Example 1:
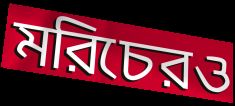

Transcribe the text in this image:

মরিচেরও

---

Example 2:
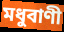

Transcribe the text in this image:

মধুবাণী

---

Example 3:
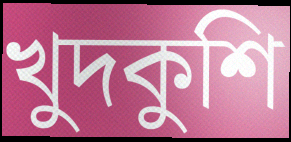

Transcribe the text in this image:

খুদকুশি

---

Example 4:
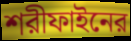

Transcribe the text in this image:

শরীফাইনের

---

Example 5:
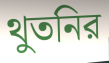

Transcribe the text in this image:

থুতনির